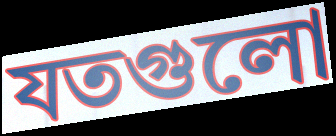
যতগুলো